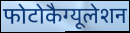
फोटोकैग्यूलेशन